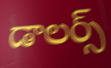
డాలర్స్